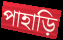
পাহাড়ি